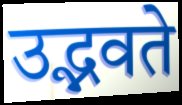
उद्भवते